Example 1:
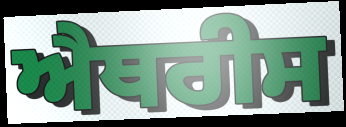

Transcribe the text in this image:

ਐਥਰੀਸ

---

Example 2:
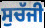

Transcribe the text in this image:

ਸੁਚੱਜੀ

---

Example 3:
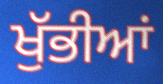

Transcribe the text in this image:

ਖੁੱਭੀਆਂ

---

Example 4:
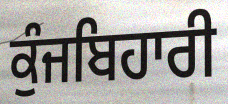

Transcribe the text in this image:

ਕੁੰਜਬਿਹਾਰੀ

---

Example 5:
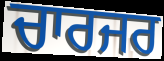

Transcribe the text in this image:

ਚਾਰਜਰ